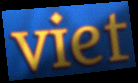
viet